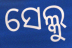
ସେଲ୍କୁ